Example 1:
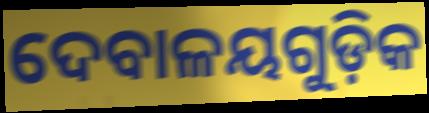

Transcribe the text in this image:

ଦେବାଳୟଗୁଡ଼ିକ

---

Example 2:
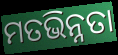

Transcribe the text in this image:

ମତଭିନ୍ନତା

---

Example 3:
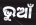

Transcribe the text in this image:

ଭୁଆଁ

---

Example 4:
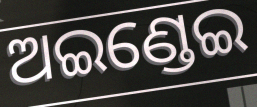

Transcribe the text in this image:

ଅଇଣ୍ଡେଇ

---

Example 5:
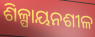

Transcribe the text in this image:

ଶିଳ୍ପାୟନଶୀଳ